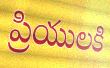
ప్రియులకి